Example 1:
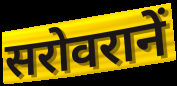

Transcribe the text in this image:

सरोवरानें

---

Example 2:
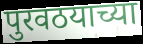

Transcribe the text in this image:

पुरवठयाच्या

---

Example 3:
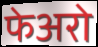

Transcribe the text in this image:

फेअरो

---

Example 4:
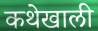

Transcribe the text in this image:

कथेखाली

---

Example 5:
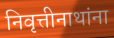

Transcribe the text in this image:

निवृत्तीनाथांना